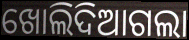
ଖୋଲିଦିଆଗଲା